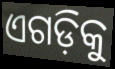
ଏଗଡ଼ିକୁ